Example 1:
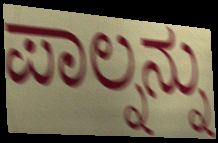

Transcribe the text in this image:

ಪಾಲ್ನನ್ನು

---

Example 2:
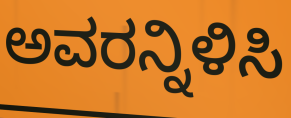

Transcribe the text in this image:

ಅವರನ್ನಿಳಿಸಿ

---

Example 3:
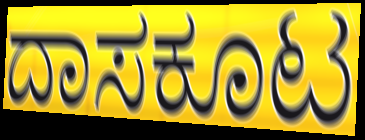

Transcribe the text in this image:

ದಾಸಕೂಟ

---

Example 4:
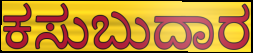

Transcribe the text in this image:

ಕಸುಬುದಾರ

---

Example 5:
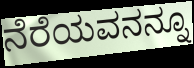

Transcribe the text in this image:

ನೆರೆಯವನನ್ನೂ